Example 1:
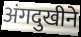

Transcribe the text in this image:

अंगदुखीने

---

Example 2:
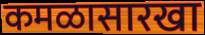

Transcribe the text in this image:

कमळासारखा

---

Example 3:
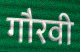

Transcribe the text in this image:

गौरवी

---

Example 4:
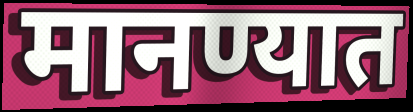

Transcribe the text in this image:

मानण्यात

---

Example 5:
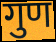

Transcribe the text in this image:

गुण